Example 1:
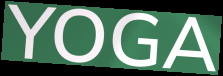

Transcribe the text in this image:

YOGA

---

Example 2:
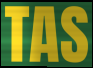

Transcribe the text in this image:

TAS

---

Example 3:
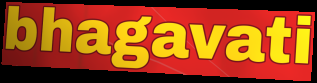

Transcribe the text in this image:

bhagavati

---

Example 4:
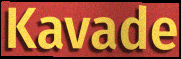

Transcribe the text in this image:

Kavade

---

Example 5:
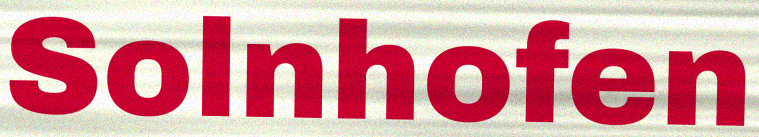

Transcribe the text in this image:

Solnhofen